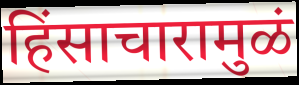
हिंसाचारामुळं